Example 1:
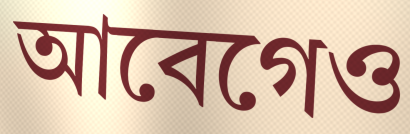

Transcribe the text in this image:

আবেগেও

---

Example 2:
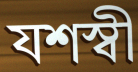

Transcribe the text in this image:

যশস্বী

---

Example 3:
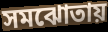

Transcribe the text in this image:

সমঝোতায়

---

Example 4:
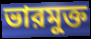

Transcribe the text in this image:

ভারমুক্ত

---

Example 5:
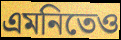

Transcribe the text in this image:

এমনিতেও